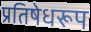
प्रतिषेधरूप